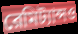
রেমিট্যান্সও